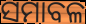
ସମାବଳ